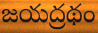
జయద్రథం